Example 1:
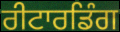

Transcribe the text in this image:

ਰੀਟਾਰਡਿੰਗ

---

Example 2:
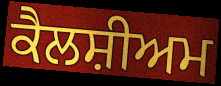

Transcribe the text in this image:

ਕੈਲਸ਼ੀਅਮ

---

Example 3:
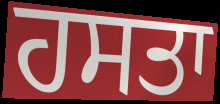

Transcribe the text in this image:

ਹਸਤਾ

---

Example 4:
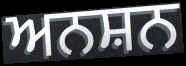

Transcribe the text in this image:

ਅਨਸ਼ਨ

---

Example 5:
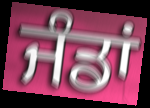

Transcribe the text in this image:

ਜੰਡਾਂ